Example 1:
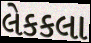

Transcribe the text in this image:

લેકકલા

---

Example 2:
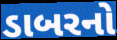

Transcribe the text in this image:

ડાબરનો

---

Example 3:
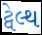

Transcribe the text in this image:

ટ્વેલ્થ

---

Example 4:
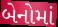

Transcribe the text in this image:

બેનોમાં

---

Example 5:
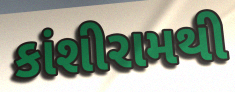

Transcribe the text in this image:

કાંશીરામથી